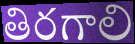
తిరగాలి